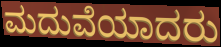
ಮದುವೆಯಾದರು